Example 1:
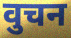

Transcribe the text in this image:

वुचन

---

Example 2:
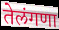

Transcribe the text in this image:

तेलंगणा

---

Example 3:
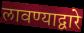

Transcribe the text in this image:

लावण्याद्वारे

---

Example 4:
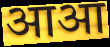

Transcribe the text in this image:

आआ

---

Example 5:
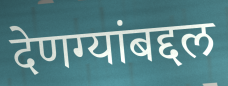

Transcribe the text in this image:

देणग्यांबद्दल